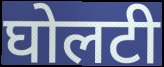
घोलटी